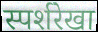
स्पर्शरेखा